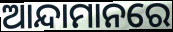
ଆନ୍ଦାମାନରେ